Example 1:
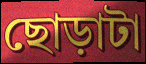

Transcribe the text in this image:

ছোড়াটা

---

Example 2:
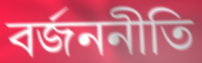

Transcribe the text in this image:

বর্জননীতি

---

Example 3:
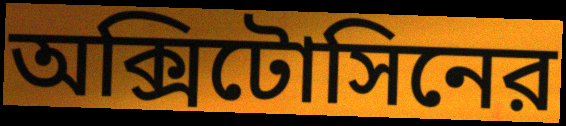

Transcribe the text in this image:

অক্সিটোসিনের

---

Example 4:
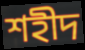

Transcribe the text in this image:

শহীদ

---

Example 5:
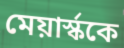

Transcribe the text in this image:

মেয়ার্স্ককে